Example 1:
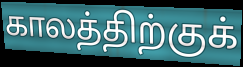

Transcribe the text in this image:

காலத்திற்குக்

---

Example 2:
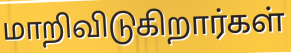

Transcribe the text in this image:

மாறிவிடுகிறார்கள்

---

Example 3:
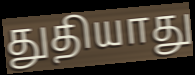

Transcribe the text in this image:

துதியாது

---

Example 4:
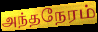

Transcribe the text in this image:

அந்தநேரம்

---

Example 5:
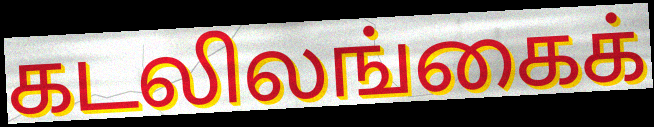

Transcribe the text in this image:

கடலிலங்கைக்